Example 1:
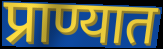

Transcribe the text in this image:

प्राण्यात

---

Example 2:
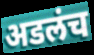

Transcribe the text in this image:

अडलंच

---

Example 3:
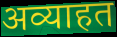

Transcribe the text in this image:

अव्याहत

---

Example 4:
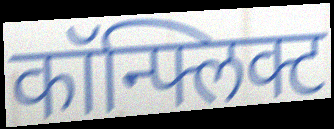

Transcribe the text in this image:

कॉन्फ्लिक्ट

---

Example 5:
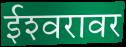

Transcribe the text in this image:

ईश्वरावर